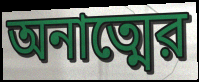
অনাত্মের